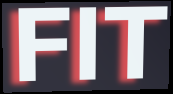
FIT